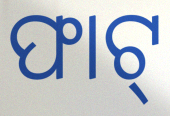
ଫାଟ୍